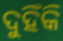
ଦୁହିଁକି